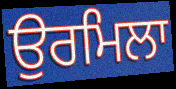
ਉਰਮਿਲਾ